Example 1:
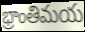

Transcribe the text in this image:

భ్రాంతిమయ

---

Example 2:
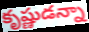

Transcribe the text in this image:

కృష్ణుడన్నా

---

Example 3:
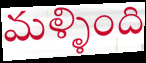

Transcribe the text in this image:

మళ్ళింది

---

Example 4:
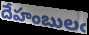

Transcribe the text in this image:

దేహంబులఁ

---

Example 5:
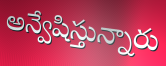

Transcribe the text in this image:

అన్వేషిస్తున్నారు